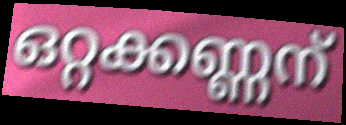
ഒറ്റക്കണ്ണന്